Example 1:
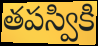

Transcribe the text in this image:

తపస్వికి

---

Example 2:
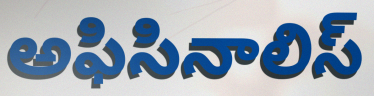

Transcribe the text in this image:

అఫిసినాలిస్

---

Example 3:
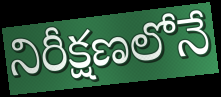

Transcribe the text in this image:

నిరీక్షణలోనే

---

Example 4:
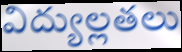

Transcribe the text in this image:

విద్యుల్లతలు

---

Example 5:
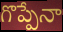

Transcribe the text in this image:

గొప్పేనా